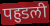
पहुडली